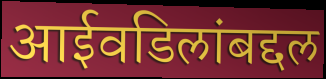
आईवडिलांबद्दल